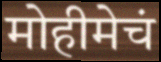
मोहीमेचं